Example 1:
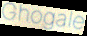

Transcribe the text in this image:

Ghogale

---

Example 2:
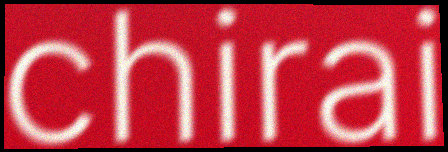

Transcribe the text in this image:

chirai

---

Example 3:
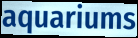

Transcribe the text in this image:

aquariums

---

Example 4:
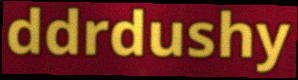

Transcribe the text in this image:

ddrdushy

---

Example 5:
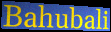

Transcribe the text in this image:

Bahubali